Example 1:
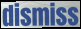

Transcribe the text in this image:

dismiss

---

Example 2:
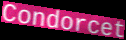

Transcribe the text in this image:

Condorcet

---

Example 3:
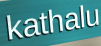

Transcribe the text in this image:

kathalu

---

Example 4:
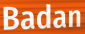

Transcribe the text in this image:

Badan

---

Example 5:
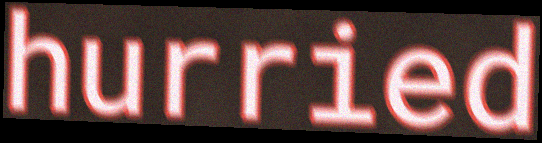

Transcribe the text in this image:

hurried